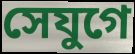
সেযুগে